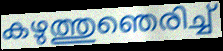
കഴുത്തുഞെരിച്ച്